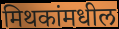
मिथकांमधील